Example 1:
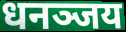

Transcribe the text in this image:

धनञ्जय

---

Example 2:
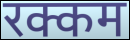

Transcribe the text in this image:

रक्कम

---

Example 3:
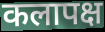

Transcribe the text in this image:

कलापक्ष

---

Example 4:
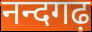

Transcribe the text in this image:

नन्दगढ़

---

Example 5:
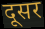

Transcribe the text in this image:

दूसर